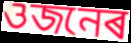
ওজনেৰ